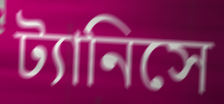
ট্যানিসে